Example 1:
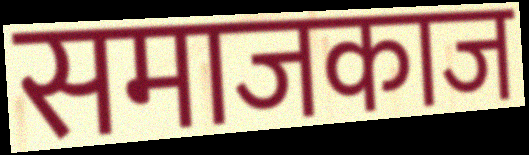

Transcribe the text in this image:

समाजकाज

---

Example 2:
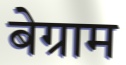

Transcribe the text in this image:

बेग्राम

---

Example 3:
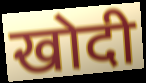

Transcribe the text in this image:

खोदी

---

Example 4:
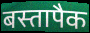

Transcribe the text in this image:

बस्तापैक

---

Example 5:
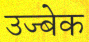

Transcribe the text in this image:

उज्बेक